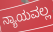
ನ್ಯಾಯವಲ್ಲ